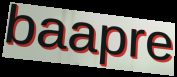
baapre